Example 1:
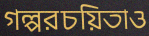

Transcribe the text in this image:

গল্পরচয়িতাও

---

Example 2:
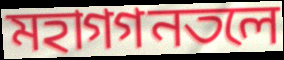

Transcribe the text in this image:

মহাগগনতলে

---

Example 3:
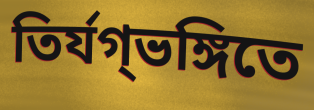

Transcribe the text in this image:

তির্যগ্ভঙ্গিতে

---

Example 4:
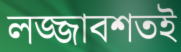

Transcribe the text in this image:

লজ্জাবশতই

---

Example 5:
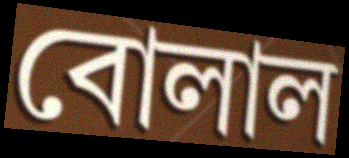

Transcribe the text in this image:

বোলাল